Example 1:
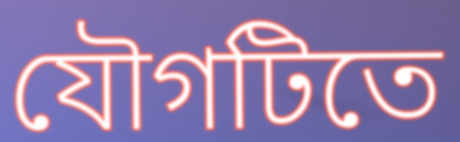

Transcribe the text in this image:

যৌগটিতে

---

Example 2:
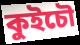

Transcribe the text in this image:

কুইচৌ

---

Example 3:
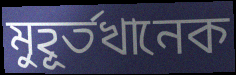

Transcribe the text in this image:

মুহূর্তখানেক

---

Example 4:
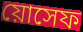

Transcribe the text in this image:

য়োসেফ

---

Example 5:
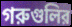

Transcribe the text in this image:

গরুগুলির